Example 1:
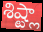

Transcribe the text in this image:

శిష్ట్లా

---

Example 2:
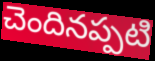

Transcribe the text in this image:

చెందినప్పటి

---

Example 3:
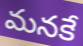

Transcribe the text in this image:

మనకే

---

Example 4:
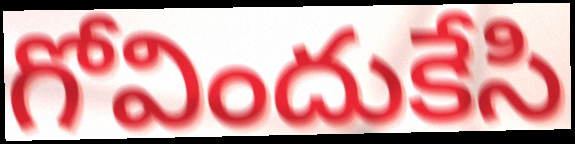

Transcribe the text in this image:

గోవిందుకేసి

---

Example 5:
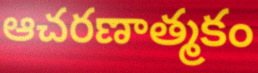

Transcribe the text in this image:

ఆచరణాత్మకం